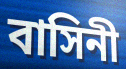
বাসিনী